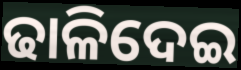
ଢାଳିଦେଇ